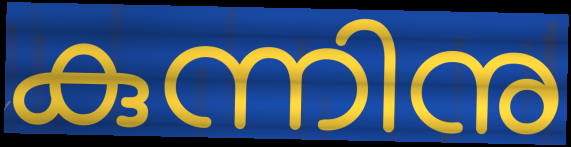
കുന്നിനു